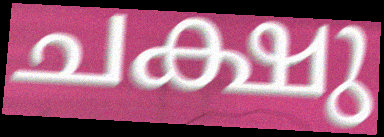
ചക്ഷു